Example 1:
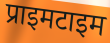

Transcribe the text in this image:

प्राइमटाइम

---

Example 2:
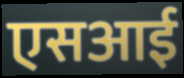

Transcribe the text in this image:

एसआई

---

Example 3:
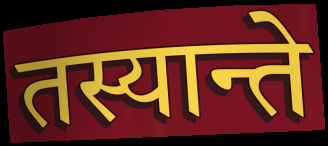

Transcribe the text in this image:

तस्यान्ते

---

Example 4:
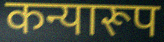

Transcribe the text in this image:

कन्यारूप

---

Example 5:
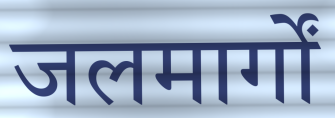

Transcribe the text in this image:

जलमार्गों